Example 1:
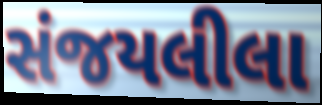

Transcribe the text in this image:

સંજયલીલા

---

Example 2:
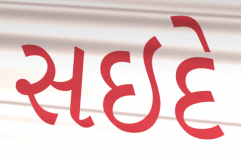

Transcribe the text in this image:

સઇદે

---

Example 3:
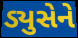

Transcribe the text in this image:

ડ્યુસેને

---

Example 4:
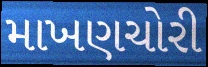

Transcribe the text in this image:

માખણચોરી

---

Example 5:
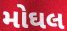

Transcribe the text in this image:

મોઘલ